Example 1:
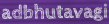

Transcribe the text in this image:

adbhutavagi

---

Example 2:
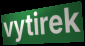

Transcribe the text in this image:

vytirek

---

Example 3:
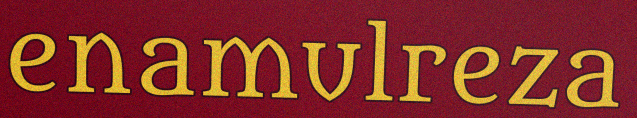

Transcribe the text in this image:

enamulreza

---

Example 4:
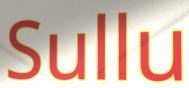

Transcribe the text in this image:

Sullu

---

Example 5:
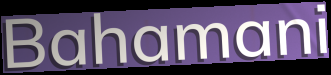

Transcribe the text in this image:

Bahamani